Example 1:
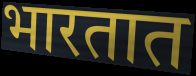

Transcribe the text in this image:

भारतात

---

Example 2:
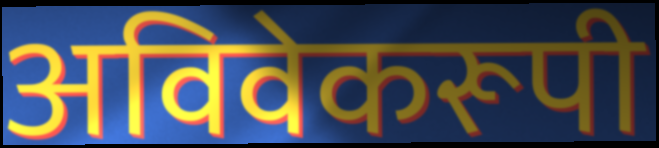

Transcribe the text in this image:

अविवेकरूपी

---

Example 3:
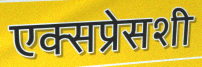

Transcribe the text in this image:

एक्सप्रेसशी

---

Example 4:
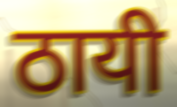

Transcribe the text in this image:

ठायी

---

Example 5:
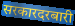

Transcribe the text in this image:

सरकारदरबारी